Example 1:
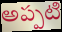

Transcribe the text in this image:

అప్పటి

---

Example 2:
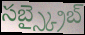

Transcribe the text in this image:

సబ్స్క్రైబ్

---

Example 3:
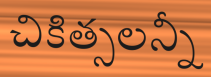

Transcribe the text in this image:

చికిత్సలన్నీ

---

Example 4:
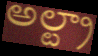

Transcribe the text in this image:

అల్ట్రా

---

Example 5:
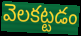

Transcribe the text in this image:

వెలకట్టడం